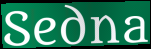
Sedna